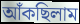
আঁকছিলাম